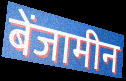
बेंजामीन